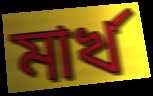
মার্খ